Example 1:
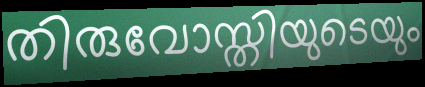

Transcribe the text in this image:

തിരുവോസ്തിയുടെയും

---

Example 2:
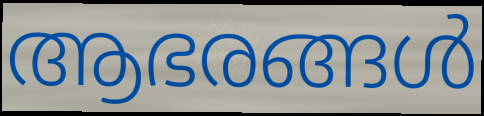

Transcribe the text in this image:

ആഭരങ്ങൾ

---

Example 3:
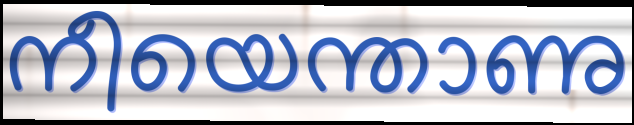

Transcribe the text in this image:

നീയെന്താണു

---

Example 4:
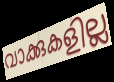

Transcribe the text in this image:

വാക്കുകളില്ല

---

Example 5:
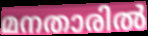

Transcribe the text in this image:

മനതാരിൽ